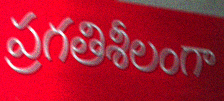
ప్రగతిశీలంగా